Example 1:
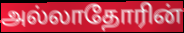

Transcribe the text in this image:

அல்லாதோரின்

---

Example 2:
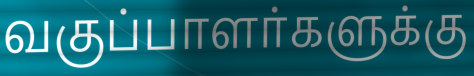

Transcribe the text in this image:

வகுப்பாளர்களுக்கு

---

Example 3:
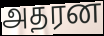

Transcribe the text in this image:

அதரன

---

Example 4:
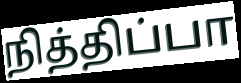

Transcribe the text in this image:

நித்திப்பா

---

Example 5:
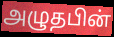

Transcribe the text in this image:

அழுதபின்